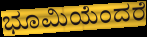
ಭೂಮಿಯೆಂದರೆ